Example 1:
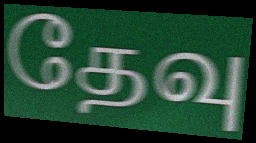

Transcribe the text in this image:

தேவு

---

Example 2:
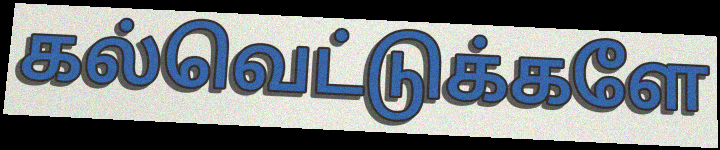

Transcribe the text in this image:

கல்வெட்டுக்களே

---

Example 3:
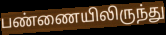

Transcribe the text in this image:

பண்ணையிலிருந்து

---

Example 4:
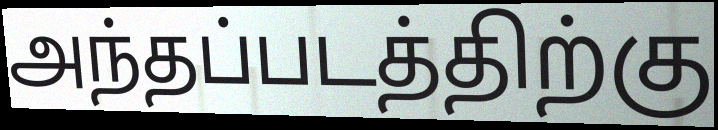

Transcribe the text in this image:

அந்தப்படத்திற்கு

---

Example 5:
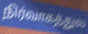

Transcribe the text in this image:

நிர்வாகத்துல